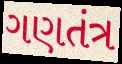
ગણતંત્ર